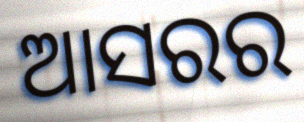
ଆସରର